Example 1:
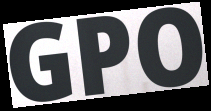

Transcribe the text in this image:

GPO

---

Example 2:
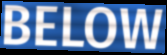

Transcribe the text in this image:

BELOW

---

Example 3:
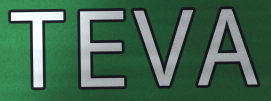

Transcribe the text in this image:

TEVA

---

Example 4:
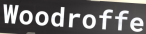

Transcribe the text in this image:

Woodroffe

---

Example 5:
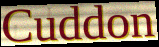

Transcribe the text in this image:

Cuddon